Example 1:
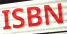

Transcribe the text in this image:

ISBN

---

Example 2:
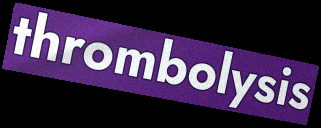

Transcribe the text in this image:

thrombolysis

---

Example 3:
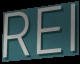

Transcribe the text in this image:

REI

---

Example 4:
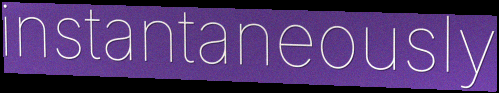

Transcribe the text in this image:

instantaneously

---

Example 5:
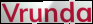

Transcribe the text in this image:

Vrunda